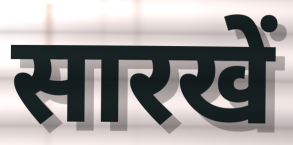
सारखें